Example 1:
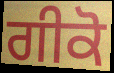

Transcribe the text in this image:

ਗੀਕੋ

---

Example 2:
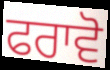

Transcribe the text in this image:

ਫਰਾਵੋ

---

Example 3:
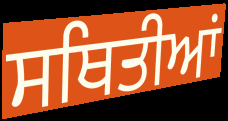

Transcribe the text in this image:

ਸਥਿਤੀਆਂ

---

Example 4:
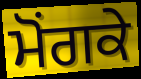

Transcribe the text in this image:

ਮੋਂਗਕੇ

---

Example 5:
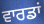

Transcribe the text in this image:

ਵਾਰਡਾਂ